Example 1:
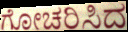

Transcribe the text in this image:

ಗೋಚರಿಸಿದ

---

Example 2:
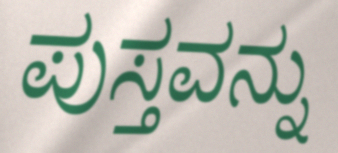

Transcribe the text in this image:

ಪುಸ್ತವನ್ನು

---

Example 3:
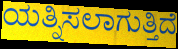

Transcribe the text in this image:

ಯತ್ನಿಸಲಾಗುತ್ತಿದೆ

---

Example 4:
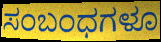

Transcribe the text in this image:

ಸಂಬಂಧಗಳೂ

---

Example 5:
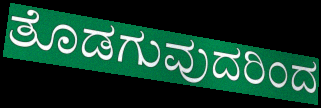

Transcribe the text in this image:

ತೊಡಗುವುದರಿಂದ